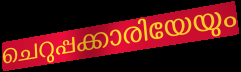
ചെറുപ്പക്കാരിയേയും